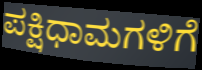
ಪಕ್ಷಿಧಾಮಗಳಿಗೆ